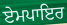
ਏਮਪਾਇਰ